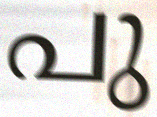
പു